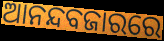
ଆନନ୍ଦବଜାରରେ